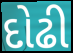
દોઢી